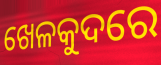
ଖେଳକୁଦରେ